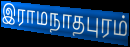
இராமநாதபுரம்